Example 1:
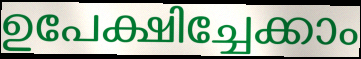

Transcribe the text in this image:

ഉപേക്ഷിച്ചേക്കാം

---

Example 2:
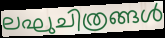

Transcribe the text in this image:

ലഘുചിത്രങ്ങൾ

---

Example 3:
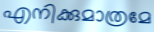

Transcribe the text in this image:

എനിക്കുമാത്രമേ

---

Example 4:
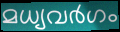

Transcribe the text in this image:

മധ്യവർഗം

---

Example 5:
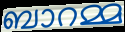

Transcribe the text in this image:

ബാറമ്മ